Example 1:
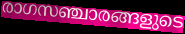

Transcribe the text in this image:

രാഗസഞ്ചാരങ്ങളുടെ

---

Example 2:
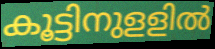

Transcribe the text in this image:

കൂട്ടിനുളളിൽ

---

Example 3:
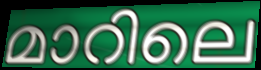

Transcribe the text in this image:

മാറിലെ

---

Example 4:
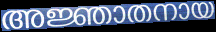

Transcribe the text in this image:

അജ്ഞാതനായ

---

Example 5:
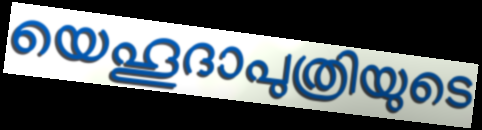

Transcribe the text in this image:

യെഹൂദാപുത്രിയുടെ